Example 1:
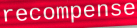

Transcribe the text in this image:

recompense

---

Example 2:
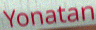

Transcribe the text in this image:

Yonatan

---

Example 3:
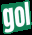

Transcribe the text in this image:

gol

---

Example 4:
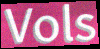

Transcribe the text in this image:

Vols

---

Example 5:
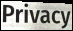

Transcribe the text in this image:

Privacy